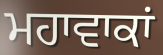
ਮਹਾਵਾਕਾਂ